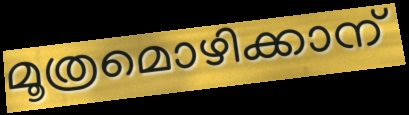
മൂത്രമൊഴിക്കാന്